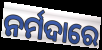
ନର୍ମଦାରେ